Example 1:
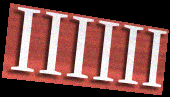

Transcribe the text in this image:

IIIIII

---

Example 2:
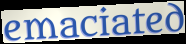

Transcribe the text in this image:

emaciated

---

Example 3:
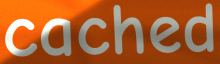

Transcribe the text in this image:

cached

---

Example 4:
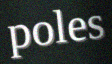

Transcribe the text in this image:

poles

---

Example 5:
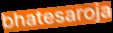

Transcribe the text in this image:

bhatesaroja